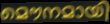
മൌനമായി